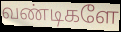
வண்டிகளே